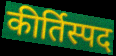
कीर्तिस्पद